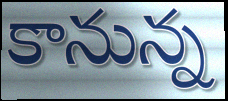
కానున్న